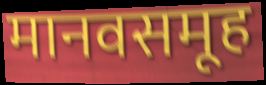
मानवसमूह